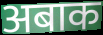
अबाक